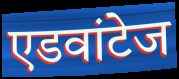
एडवांटेज